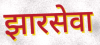
झारसेवा